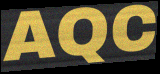
AQC